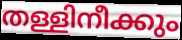
തള്ളിനീക്കും